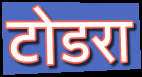
टोडरा